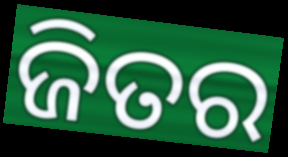
ଜିତର